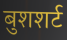
बुशशर्ट